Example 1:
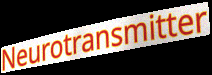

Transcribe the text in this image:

Neurotransmitter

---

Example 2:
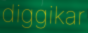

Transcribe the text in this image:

diggikar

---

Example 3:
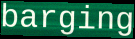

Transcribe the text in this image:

barging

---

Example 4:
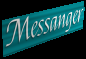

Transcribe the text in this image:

Messanger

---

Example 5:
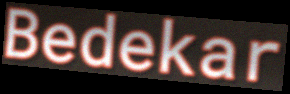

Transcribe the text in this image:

Bedekar